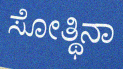
ಸೋತ್ಥಿನಾ